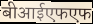
बीआईएफएफ